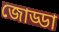
জোড্ডা